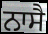
ਨਾਸੈ